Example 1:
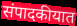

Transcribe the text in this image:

संपादकीयात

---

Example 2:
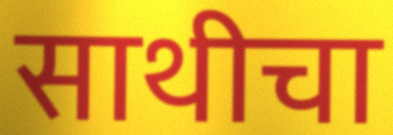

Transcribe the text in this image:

साथीचा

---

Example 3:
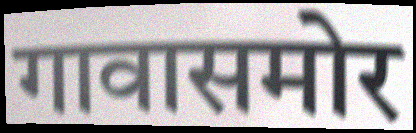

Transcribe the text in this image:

गावासमोर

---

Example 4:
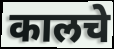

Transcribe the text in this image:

कालचे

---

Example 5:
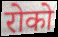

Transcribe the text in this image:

रोको